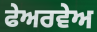
ਫੇਅਰਵੇਅ